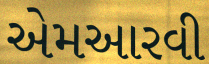
એમઆરવી